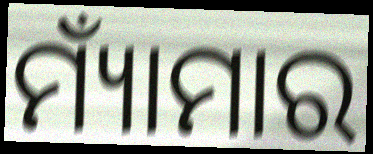
ମ୍ୟାଁମାର